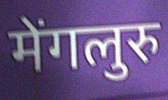
मेंगलुरु